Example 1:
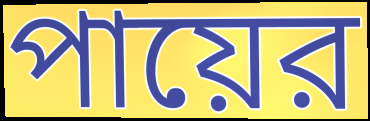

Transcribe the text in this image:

পায়ের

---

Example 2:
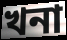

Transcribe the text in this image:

খনা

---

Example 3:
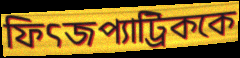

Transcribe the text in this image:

ফিৎজপ্যাট্রিককে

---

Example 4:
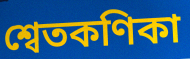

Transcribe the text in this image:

শ্বেতকণিকা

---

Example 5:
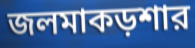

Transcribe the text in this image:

জলমাকড়শার